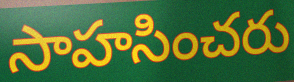
సాహసించరు